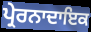
ਪ੍ਰੇਰਨਾਦਾਇਕ